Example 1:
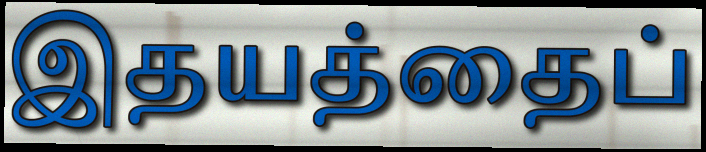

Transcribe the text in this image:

இதயத்தைப்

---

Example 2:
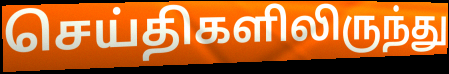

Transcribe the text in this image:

செய்திகளிலிருந்து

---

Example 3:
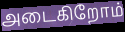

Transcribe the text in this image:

அடைகிறோம்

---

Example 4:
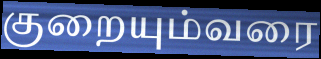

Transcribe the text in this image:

குறையும்வரை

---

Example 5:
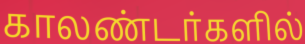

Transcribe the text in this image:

காலண்டர்களில்